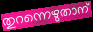
തുറന്നെഴുതാന്